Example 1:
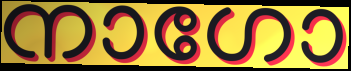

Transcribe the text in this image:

നാഗോ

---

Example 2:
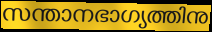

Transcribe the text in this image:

സന്താനഭാഗ്യത്തിനു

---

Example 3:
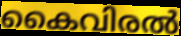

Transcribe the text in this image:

കൈവിരൽ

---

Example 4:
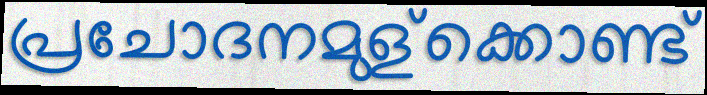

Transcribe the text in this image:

പ്രചോദനമുള്ക്കൊണ്ട്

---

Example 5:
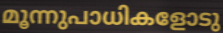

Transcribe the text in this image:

മൂന്നുപാധികളോടു